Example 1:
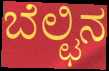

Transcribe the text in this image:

ಬೆಲ್ಟಿನ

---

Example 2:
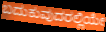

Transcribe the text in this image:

ಬದುಕುವುದರಲ್ಲಿಯೇ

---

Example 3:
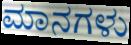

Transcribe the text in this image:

ಮಾನಗಳು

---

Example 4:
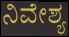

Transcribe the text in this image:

ನಿವೇಶ್ಯ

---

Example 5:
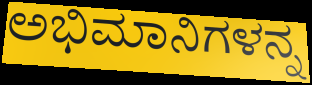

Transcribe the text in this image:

ಅಭಿಮಾನಿಗಳನ್ನ